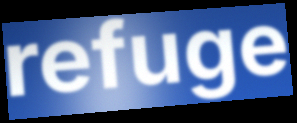
refuge